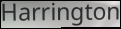
Harrington